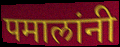
पमालांनी